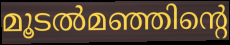
മൂടൽമഞ്ഞിന്റെ